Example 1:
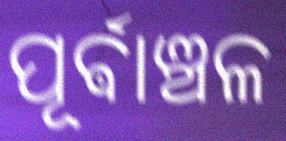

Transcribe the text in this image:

ପୂର୍ଵାଞ୍ଚଳ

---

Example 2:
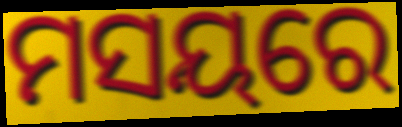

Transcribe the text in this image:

ମସୟରେ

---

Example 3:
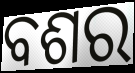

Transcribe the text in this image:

ବଶର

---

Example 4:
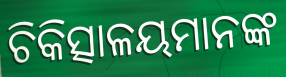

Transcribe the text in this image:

ଚିକିତ୍ସାଳୟମାନଙ୍କ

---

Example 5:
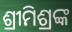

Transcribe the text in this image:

ଶ୍ରୀମିଶ୍ରଙ୍କ